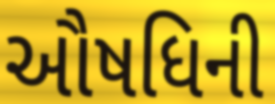
ઔષધિની